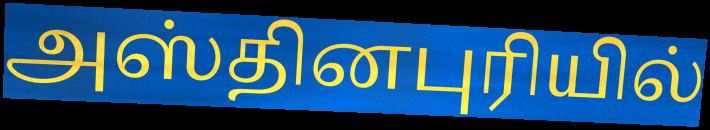
அஸ்தினபுரியில்